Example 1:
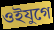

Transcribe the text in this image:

ওইযুগে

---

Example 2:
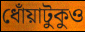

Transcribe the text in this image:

ধোঁয়াটুকুও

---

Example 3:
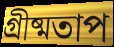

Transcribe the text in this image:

গ্রীষ্মতাপ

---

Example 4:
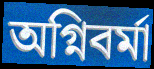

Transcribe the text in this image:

অগ্নিবর্মা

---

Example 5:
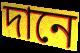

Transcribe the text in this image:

দানে